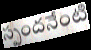
స్పందనేంటి